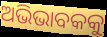
ଅଭିଭାବକକୁ